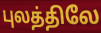
புலத்திலே